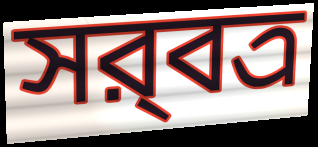
সর্‍বত্র